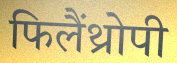
फिलैंथ्रोपी